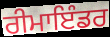
ਰੀਮਾਇੰਡਰ